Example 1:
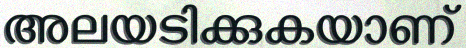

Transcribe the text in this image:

അലയടിക്കുകയാണ്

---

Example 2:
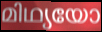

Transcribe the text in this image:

മിഥ്യയോ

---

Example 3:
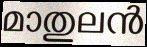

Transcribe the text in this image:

മാതുലൻ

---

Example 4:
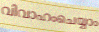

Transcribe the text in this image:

വിവാഹംചെയ്യാം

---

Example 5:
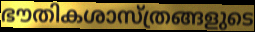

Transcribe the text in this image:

ഭൗതികശാസ്ത്രങ്ങളുടെ